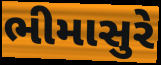
ભીમાસુરે